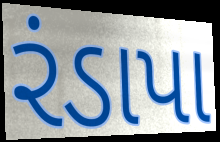
રંડાપા